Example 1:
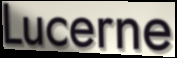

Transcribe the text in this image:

Lucerne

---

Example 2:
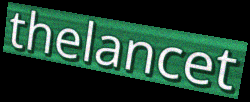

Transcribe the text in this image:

thelancet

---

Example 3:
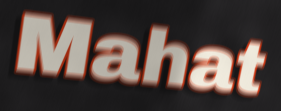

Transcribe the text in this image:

Mahat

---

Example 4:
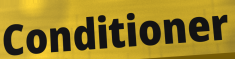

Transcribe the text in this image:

Conditioner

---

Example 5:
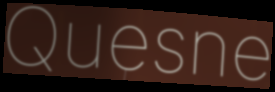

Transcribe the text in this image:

Quesne